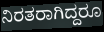
ನಿರತರಾಗಿದ್ದರೂ